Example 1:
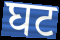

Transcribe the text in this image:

घट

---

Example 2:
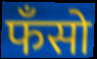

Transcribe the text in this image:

फँसो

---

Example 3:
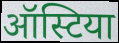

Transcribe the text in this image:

ऑस्टिया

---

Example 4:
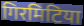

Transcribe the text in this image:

गिरमिटिया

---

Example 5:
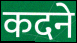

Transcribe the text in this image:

कदने